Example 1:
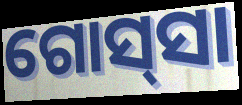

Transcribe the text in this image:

ଗୋସ୍‌ସା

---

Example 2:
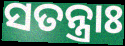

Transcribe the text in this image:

ସତନ୍ତ୍ରାଃ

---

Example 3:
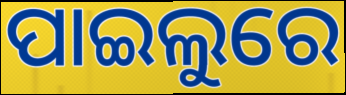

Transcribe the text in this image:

ପାଇଲୁରେ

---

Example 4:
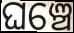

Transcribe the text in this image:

ଘଞ୍ଚେ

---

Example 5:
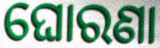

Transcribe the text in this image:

ଘୋରଣା